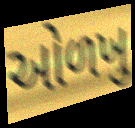
ઓળખુ